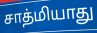
சாத்மியாது